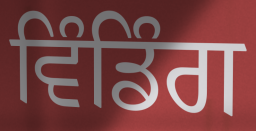
ਵਿੰਡਿੰਗ